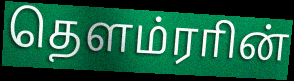
தௌம்ரரின்